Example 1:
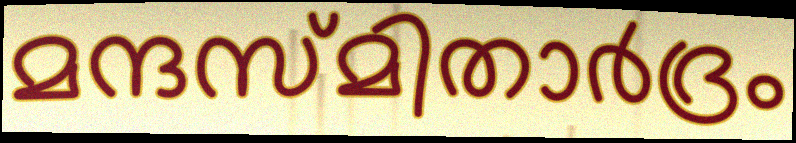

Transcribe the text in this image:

മന്ദസ്മിതാർദ്രം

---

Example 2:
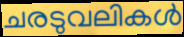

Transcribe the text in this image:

ചരടുവലികൾ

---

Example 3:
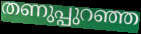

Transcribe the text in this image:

തണുപ്പുറഞ്ഞ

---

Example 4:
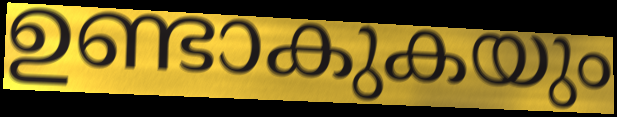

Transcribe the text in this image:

ഉണ്ടാകുകയും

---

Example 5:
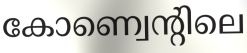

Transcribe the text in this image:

കോണ്വെന്റിലെ